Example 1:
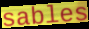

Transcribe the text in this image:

sables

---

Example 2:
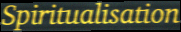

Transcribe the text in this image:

Spiritualisation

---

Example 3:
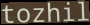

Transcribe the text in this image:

tozhil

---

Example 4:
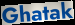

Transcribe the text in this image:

Ghatak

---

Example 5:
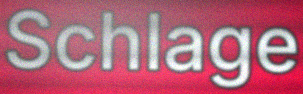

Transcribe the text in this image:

Schlage